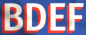
BDEF